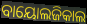
ବାୟୋଲଜିକାଲ